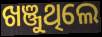
ଖଞ୍ଜୁଥିଲେ